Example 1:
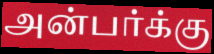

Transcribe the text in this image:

அன்பர்க்கு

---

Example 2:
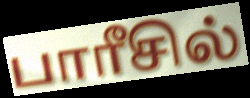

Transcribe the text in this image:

பாரீசில்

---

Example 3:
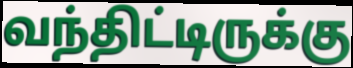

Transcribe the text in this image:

வந்திட்டிருக்கு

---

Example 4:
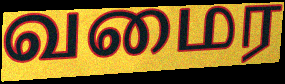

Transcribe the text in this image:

வமைர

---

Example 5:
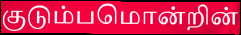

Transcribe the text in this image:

குடும்பமொன்றின்